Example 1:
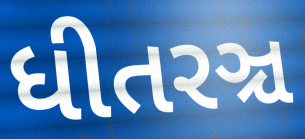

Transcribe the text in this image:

ધીતરઞ્ચ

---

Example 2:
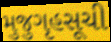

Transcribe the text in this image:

મુજુગૃહસૂચી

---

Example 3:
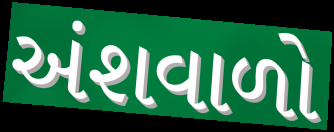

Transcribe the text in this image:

અંશવાળો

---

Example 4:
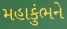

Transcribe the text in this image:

મહાકુંભને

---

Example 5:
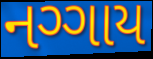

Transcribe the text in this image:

નગ્ગાય